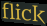
flick